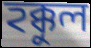
হক্কুল